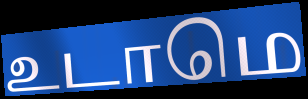
உடாமெ